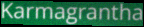
Karmagrantha